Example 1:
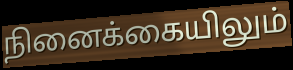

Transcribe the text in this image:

நினைக்கையிலும்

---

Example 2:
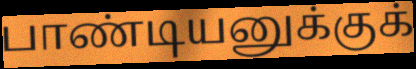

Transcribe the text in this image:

பாண்டியனுக்குக்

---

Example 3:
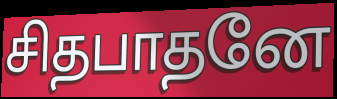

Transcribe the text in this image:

சிதபாதனே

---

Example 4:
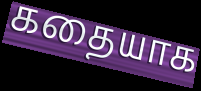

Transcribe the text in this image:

கதையாக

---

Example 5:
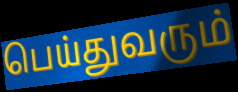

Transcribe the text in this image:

பெய்துவரும்